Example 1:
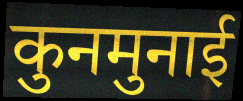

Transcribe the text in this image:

कुनमुनाई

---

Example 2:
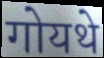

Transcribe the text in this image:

गोयथे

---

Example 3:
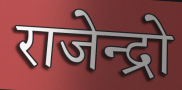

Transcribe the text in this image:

राजेन्द्रो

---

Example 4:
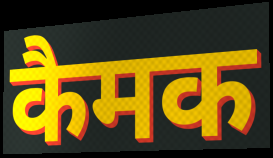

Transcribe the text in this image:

कैमक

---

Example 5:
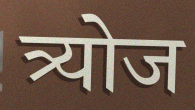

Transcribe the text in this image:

त्र्योज